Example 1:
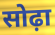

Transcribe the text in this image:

सोढ़ा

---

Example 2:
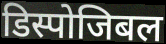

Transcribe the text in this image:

डिस्पोजिबल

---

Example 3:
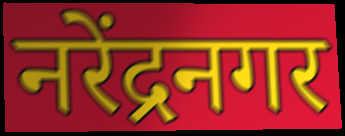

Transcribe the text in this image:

नरेंद्रनगर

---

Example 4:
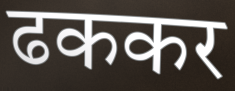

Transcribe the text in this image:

ढककर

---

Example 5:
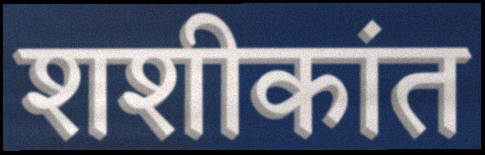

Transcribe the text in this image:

शशीकांत